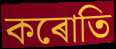
কৰোতি